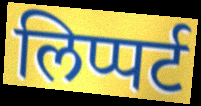
लिप्पर्ट